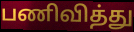
பணிவித்து